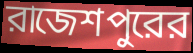
রাজেশপুরের